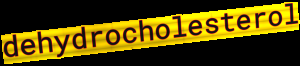
dehydrocholesterol